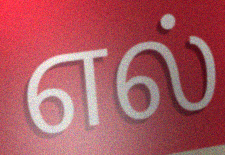
எல்